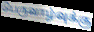
பெருவாழ்வுக்கு